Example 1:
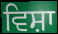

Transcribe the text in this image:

ਵਿਸ਼ਾ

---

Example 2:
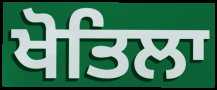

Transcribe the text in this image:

ਖੋਤਿਲਾ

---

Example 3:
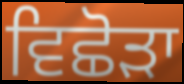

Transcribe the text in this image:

ਵਿਛੋੜਾ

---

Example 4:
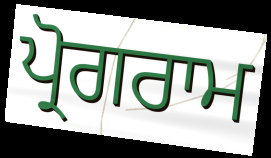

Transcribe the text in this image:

ਪ੍ਰੋਗਰਾਮ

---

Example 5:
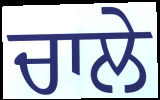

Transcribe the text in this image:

ਚਾਲੇ